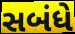
સબંધે